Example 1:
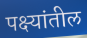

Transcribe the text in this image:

पक्ष्यांतील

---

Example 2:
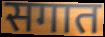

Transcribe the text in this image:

सगात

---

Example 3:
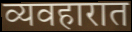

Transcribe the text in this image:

व्यवहारात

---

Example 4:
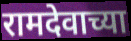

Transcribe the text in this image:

रामदेवाच्या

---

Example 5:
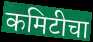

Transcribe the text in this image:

कमिटीचा